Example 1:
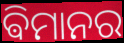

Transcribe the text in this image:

ଵିମାନର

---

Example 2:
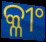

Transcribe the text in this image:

କ୍ଳୀଂ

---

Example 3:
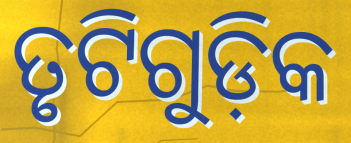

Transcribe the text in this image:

ତୃଟିଗୁଡ଼ିକ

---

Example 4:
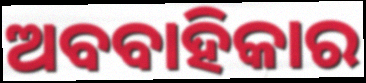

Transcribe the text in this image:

ଅବବାହିକାର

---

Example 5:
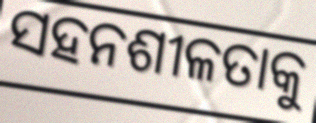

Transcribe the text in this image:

ସହନଶୀଳତାକୁ